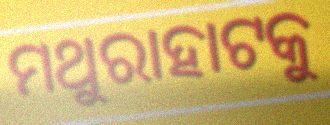
ମଥୁରାହାଟକୁ